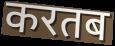
करतब